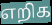
எறிக